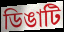
ডিঙাটি